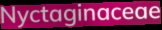
Nyctaginaceae